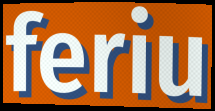
feriu